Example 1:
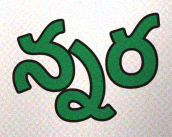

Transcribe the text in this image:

న్నర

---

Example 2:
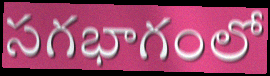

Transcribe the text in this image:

సగభాగంలో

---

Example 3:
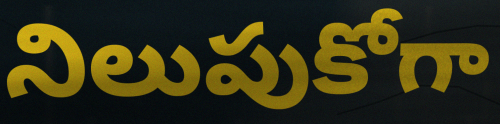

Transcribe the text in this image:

నిలుపుకోగా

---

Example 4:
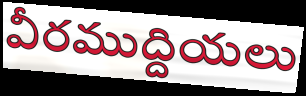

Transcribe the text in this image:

వీరముద్దియలు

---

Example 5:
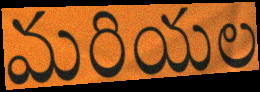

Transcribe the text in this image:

మరియల